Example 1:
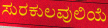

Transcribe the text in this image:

ಸುರಕುಲವುಲಿಯೆ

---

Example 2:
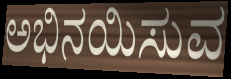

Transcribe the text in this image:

ಅಭಿನಯಿಸುವ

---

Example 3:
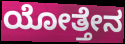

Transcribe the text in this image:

ಯೋತ್ತೇನ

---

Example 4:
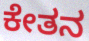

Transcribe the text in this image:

ಕೇತನ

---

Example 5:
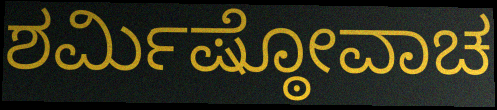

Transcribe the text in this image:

ಶರ್ಮಿಷ್ಠೋವಾಚ